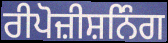
ਰੀਪੋਜ਼ੀਸ਼ਨਿੰਗ